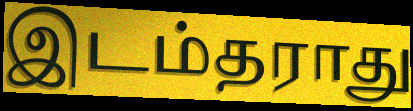
இடம்தராது